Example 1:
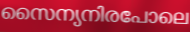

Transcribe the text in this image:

സൈന്യനിരപോലെ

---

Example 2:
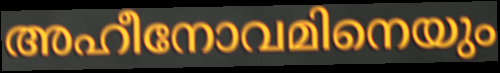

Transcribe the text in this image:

അഹീനോവമിനെയും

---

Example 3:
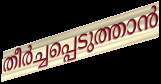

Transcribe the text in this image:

തീർച്ചപ്പെടുത്താൻ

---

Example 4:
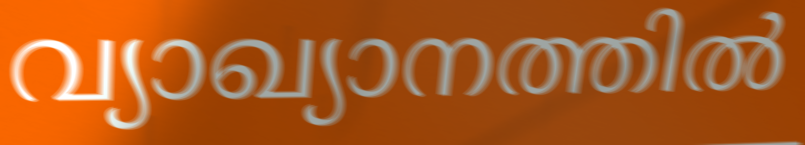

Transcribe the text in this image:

വ്യാഖ്യാനത്തിൽ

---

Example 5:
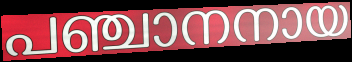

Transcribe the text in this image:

പഞ്ചാനനായ